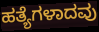
ಹತ್ಯೆಗಳಾದವು